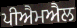
ਪੀਐਮਐਲ